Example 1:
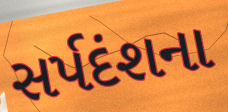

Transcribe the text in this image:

સર્પદંશના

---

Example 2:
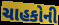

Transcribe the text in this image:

ચાહકોની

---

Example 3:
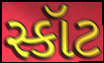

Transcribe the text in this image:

સ્કૉટ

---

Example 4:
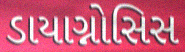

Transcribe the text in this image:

ડાયાગ્નોસિસ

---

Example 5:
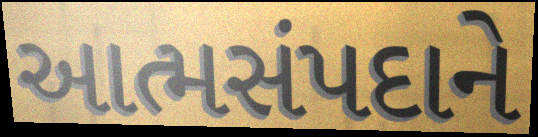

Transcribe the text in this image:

આત્મસંપદાને